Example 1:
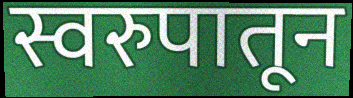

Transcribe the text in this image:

स्वरुपातून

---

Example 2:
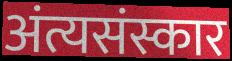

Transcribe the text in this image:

अंत्यसंस्कार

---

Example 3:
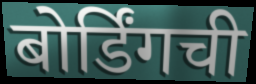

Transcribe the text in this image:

बोर्डिंगची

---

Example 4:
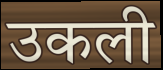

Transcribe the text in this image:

उकली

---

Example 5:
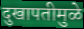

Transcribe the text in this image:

दुखापतीमुळे